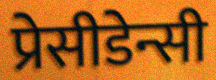
प्रेसीडेन्सी